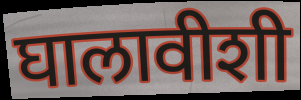
घालावीशी